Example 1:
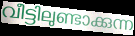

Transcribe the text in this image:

വീട്ടിലുണ്ടാക്കുന്ന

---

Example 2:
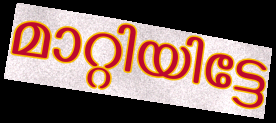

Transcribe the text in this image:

മാറ്റിയിട്ടേ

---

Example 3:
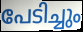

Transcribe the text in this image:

പേടിച്ചും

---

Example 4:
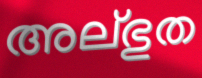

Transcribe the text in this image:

അല്ഭുത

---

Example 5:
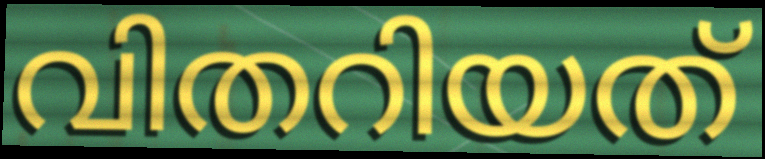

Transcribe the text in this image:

വിതറിയത്